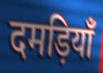
दमड़ियाँ